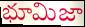
భూమిజా